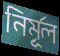
নিৰ্মূল